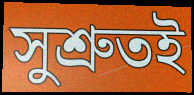
সুশ্ৰুতই